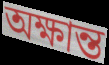
অক্ষান্ত